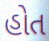
હોત